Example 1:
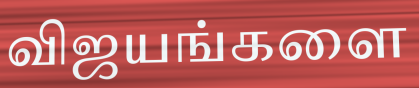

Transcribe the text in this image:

விஜயங்களை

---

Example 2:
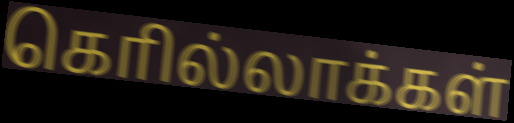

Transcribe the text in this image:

கெரில்லாக்கள்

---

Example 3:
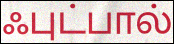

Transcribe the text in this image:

ஃபுட்பால்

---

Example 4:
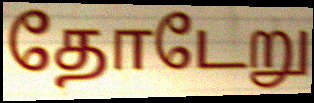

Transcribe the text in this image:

தோடேறு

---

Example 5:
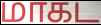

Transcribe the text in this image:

மாகட